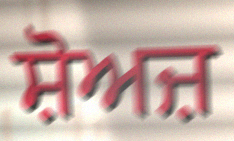
ਸ਼ੋਅਜ਼